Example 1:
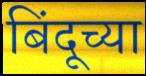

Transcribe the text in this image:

बिंदूच्या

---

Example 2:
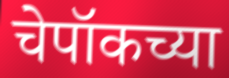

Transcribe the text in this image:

चेपॉकच्या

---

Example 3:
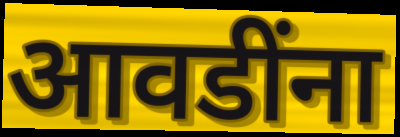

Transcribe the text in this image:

आवडींना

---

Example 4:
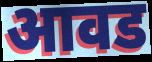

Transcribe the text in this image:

आवड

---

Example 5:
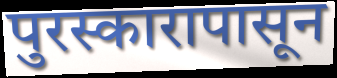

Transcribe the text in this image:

पुरस्कारापासून